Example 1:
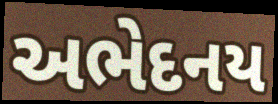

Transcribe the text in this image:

અભેદનય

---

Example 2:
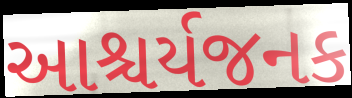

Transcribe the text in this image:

આશ્ચર્યજનક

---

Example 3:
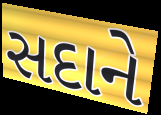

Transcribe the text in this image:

સદાને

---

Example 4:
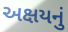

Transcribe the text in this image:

અક્ષયનું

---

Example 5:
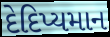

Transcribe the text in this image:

દેદિપ્યમાન